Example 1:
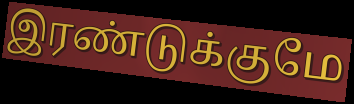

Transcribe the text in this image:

இரண்டுக்குமே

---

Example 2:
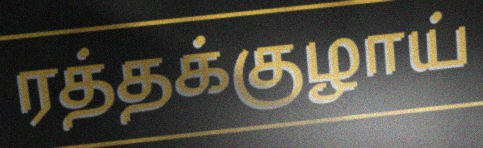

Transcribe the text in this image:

ரத்தக்குழாய்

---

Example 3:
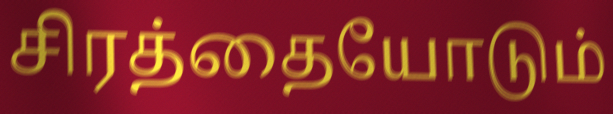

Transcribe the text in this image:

சிரத்தையோடும்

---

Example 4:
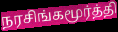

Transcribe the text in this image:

நரசிங்கமூர்த்தி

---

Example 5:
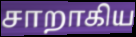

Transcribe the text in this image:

சாறாகிய